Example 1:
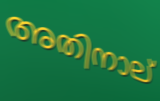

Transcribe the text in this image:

അതിനാല്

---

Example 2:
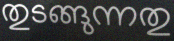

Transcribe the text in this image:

തുടങ്ങുന്നതു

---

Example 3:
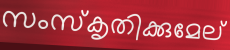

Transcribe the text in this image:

സംസ്കൃതിക്കുമേല്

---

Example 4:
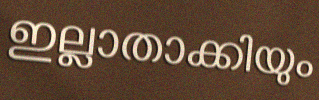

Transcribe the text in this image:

ഇല്ലാതാക്കിയും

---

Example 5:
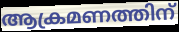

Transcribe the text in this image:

ആക്രമണത്തിന്